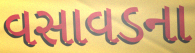
વસાવડના